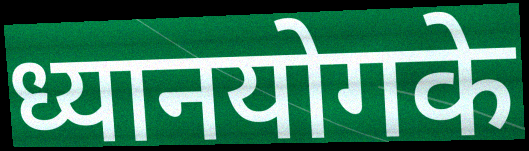
ध्यानयोगके